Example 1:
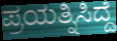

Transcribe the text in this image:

ಪ್ರಯತ್ನಿಸಿದ್ದೆ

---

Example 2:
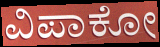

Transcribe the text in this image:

ವಿಪಾಕೋ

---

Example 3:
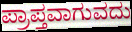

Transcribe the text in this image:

ಪ್ರಾಪ್ತವಾಗುವದು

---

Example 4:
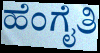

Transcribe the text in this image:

ಹೆಂಗೈತಿ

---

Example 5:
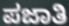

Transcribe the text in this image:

ಪಜಾತಿ